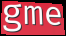
gme